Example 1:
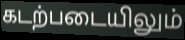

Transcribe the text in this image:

கடற்படையிலும்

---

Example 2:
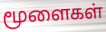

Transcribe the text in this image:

மூளைகள்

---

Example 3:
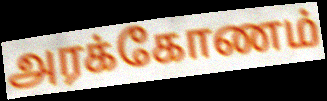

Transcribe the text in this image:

அரக்கோணம்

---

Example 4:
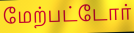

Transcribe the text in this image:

மேற்பட்டோர்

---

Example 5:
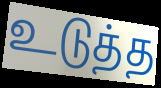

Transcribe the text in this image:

உடுத்த